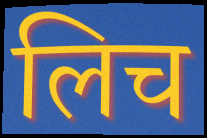
लिच